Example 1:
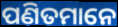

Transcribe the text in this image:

ପଣିତମାନେ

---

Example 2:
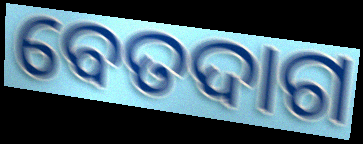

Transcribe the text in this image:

ବେତଦାଗ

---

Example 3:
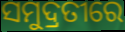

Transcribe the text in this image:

ସମୁଦ୍ରତୀରେ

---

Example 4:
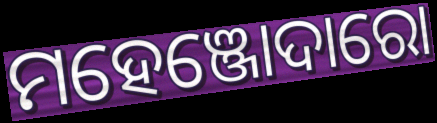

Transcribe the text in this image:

ମହେଞ୍ଜୋଦାରୋ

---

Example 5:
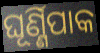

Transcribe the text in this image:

ଘୂର୍ଣ୍ଣିପାକ